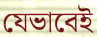
যেভাবেই